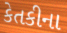
કેતકીના